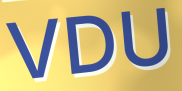
VDU